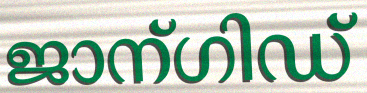
ജാന്ഗിഡ്